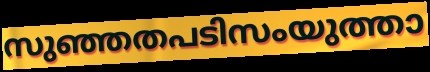
സുഞ്ഞതപടിസംയുത്താ